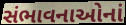
સંભાવનાઓનાં